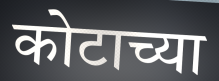
कोटाच्या